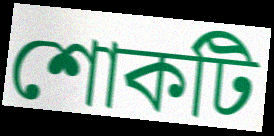
শোকটি